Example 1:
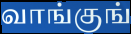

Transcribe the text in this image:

வாங்குங்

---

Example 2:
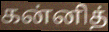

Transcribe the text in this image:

கன்னித்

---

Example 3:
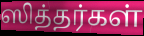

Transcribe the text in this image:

ஸித்தர்கள்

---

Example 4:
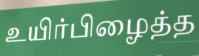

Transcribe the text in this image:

உயிர்பிழைத்த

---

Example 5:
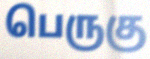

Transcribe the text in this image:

பெருகு